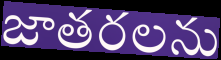
జాతరలను